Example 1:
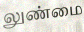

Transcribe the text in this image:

லுண்மை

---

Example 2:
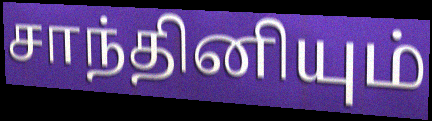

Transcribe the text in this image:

சாந்தினியும்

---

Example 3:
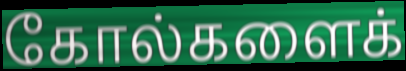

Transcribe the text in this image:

கோல்களைக்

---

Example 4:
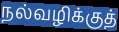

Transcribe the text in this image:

நல்வழிக்குத்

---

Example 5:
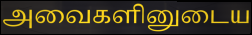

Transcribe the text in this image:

அவைகளினுடைய